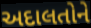
અદાલતોને